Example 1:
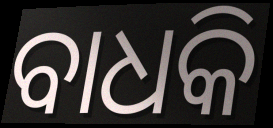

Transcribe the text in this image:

ବାଧକି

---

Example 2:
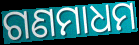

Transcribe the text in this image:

ଗଣମାଧମ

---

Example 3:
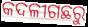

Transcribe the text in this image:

କଦଳୀଗଛରୁ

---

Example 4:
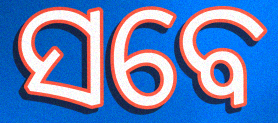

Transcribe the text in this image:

ସବେ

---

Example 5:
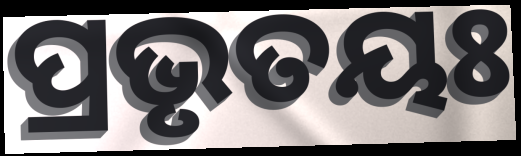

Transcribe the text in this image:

ପ୍ରଭୃତୟଃ